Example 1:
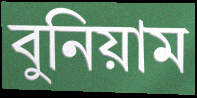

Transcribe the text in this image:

বুনিয়াম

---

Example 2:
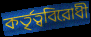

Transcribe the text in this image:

কর্তৃত্ববিরোধী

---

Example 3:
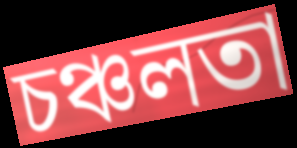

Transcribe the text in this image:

চঞ্চলতা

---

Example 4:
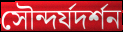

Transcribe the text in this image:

সৌন্দর্যদর্শন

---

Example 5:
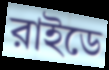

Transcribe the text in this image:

রাইডে